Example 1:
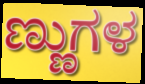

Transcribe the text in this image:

ಣ್ಣುಗಳ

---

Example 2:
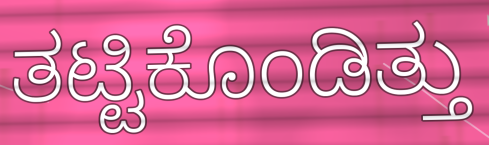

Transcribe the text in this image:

ತಟ್ಟಿಕೊಂಡಿತ್ತು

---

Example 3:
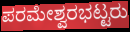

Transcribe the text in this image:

ಪರಮೇಶ್ವರಭಟ್ಟರು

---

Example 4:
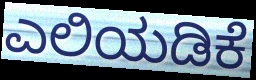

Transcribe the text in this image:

ಎಲಿಯಡಿಕೆ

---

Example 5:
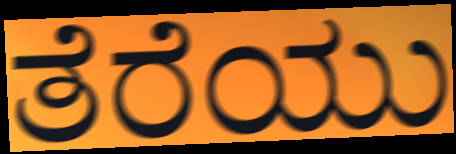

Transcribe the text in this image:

ತೆರೆಯು